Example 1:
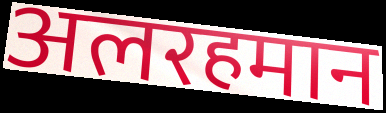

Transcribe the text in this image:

अलरहमान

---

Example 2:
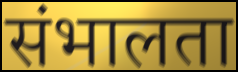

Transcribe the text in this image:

संभालता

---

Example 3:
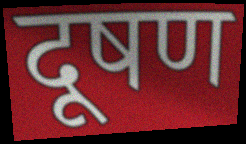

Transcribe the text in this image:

दूषण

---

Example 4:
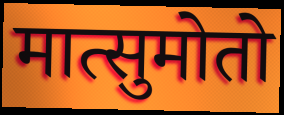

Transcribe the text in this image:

मात्सुमोतो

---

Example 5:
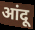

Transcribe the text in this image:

आंदू